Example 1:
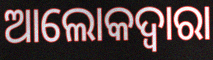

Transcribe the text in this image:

ଆଲୋକଦ୍ୱାରା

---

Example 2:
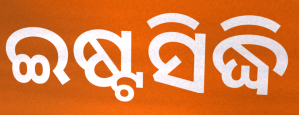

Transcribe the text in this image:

ଇଷ୍ଟସିଦ୍ଧି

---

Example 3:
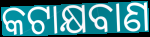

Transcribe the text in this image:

କଟାକ୍ଷବାଣ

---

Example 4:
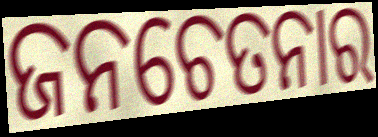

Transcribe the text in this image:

ଜନଚେତନାର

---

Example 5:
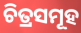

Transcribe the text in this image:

ଚିତ୍ରସମୂହ